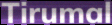
Tirumal